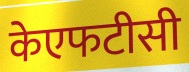
केएफटीसी